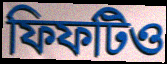
ফিফটিও